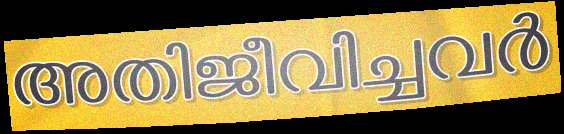
അതിജീവിച്ചവർ